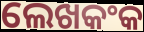
ଲେଖକଂକ